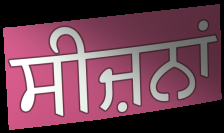
ਸੀਜ਼ਨਾਂ